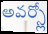
అవర్స్లో